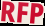
RFP